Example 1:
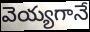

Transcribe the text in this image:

వెయ్యగానే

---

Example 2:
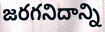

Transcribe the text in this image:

జరగనిదాన్ని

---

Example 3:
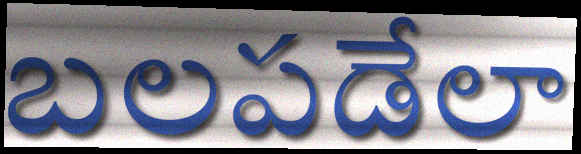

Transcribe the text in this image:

బలపడేలా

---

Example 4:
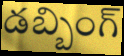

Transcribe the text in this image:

డబ్బింగ్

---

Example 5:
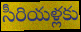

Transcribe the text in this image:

సీరియళ్లకు